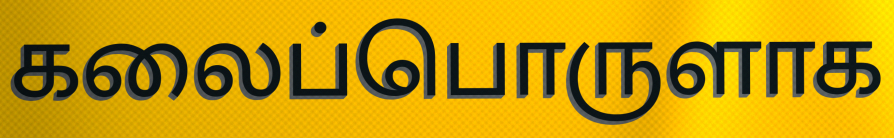
கலைப்பொருளாக